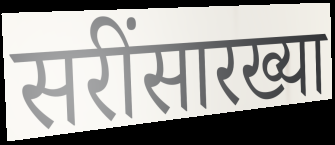
सरींसारख्या